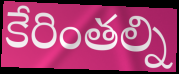
కేరింతల్ని